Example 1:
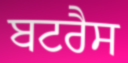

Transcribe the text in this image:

ਬਟਰੈਸ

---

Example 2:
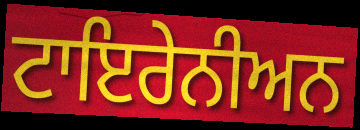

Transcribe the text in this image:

ਟਾਇਰੇਨੀਅਨ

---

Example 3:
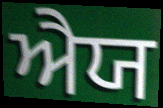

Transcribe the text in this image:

ਐਯ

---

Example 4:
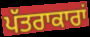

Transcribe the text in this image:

ਪੱਤਰਾਕਾਰਾਂ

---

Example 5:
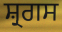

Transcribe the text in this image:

ਸ਼੍ਰਗਸ